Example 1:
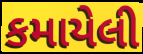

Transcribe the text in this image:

કમાયેલી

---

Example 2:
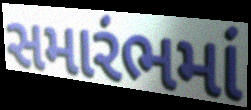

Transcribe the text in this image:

સમારંભમાં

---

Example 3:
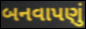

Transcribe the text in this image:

બનવાપણું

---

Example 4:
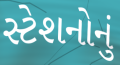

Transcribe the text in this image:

સ્ટેશનોનું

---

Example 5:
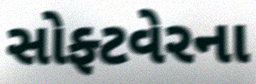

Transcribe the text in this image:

સોફ્ટવેરના